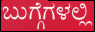
ಬುಗ್ಗೆಗಳಲ್ಲಿ